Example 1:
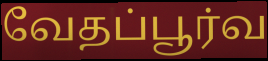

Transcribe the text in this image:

வேதப்பூர்வ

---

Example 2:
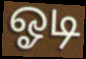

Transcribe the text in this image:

ஓடி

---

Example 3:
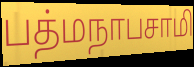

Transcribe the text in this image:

பத்மநாபசாமி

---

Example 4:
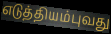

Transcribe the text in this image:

எடுத்தியம்புவது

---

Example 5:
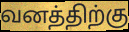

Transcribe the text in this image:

வனத்திற்கு